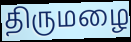
திருமழை